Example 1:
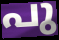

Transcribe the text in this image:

പു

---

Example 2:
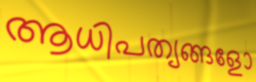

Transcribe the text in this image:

ആധിപത്യങ്ങളോ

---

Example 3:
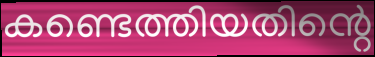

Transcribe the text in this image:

കണ്ടെത്തിയതിന്റെ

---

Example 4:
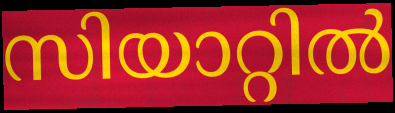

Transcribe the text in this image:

സിയാറ്റിൽ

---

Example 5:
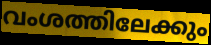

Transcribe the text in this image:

വംശത്തിലേക്കും